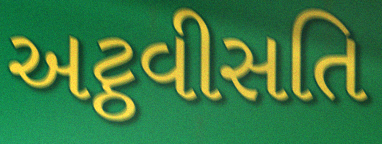
અટ્ઠવીસતિ